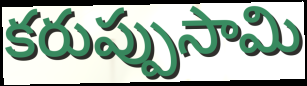
కరుప్పుసామి